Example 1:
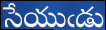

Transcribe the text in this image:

సేయుఁడు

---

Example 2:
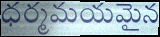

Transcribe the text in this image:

ధర్మమయమైన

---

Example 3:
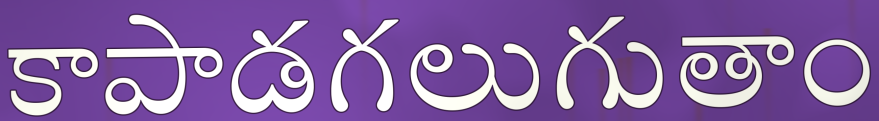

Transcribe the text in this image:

కాపాడగలుగుతాం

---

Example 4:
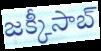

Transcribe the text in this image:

జక్కీసాబ్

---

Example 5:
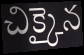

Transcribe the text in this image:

చిక్కైన